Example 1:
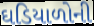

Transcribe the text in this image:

ઘડિયાળોની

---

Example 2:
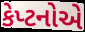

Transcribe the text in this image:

કેપ્ટનોએ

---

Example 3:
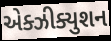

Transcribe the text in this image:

એક્ઝીક્યુશન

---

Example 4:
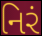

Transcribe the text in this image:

નિરં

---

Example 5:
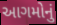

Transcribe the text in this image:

આગમોનું